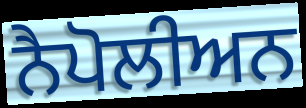
ਨੈਪੋਲੀਅਨ